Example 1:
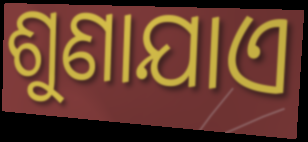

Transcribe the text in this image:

ଶୁଣାଯାଏ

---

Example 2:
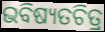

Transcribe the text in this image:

ଭବିଷ୍ୟତଚିତ୍ର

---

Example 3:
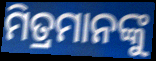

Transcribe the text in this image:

ମିତ୍ରମାନଙ୍କୁ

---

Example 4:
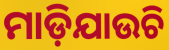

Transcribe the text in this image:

ମାଡ଼ିଯାଉଚି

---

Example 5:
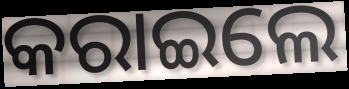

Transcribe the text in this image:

କରାଇଲେ